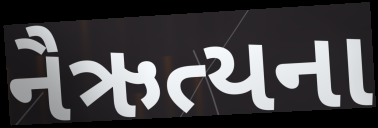
નૈઋત્યના